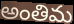
అంతిమ